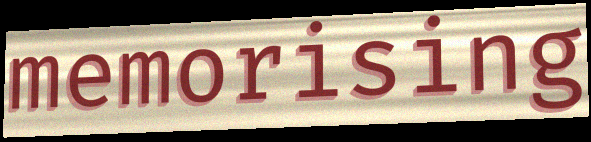
memorising